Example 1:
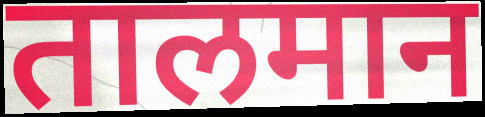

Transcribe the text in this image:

तालमान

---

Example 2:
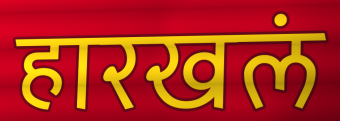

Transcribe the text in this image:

हारखलं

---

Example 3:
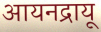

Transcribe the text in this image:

आयनद्रायू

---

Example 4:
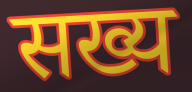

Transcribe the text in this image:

सख्य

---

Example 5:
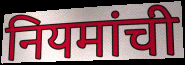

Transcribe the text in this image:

नियमांची